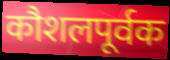
कौशलपूर्वक